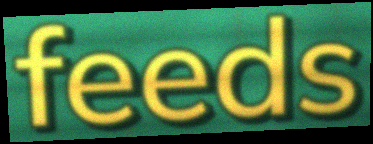
feeds